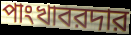
পাংখাবরদার